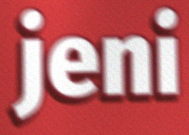
jeni